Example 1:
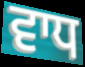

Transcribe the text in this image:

ਵਾਧ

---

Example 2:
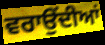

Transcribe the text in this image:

ਵਰਾਉਂਦੀਆਂ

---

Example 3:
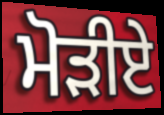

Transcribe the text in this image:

ਮੋੜੀਏ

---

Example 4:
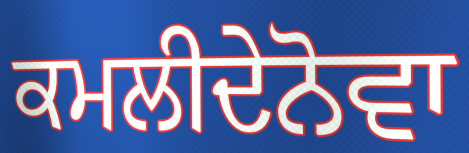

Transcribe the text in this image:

ਕਮਲੀਦੇਨੋਵਾ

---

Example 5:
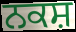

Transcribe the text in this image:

ਨਕਸ਼